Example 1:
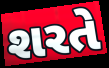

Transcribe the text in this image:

શરતે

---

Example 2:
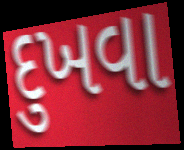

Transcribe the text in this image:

દુખવા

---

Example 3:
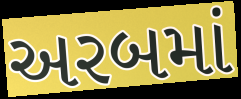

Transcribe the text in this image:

અરબમાં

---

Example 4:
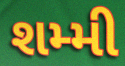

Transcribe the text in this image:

શમ્મી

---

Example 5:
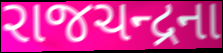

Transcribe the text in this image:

રાજચન્દ્રના